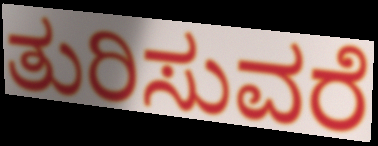
ತುರಿಸುವರೆ